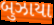
બુઝાયા